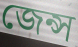
জেন্স